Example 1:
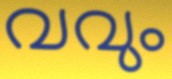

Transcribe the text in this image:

വവും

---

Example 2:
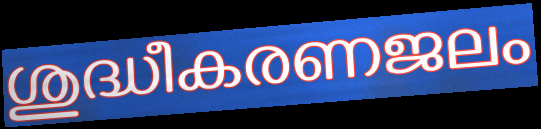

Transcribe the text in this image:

ശുദ്ധീകരണജലം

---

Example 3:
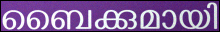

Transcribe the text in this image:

ബൈക്കുമായി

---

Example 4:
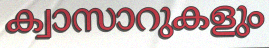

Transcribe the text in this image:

ക്വാസാറുകളും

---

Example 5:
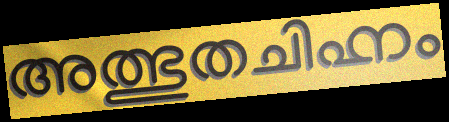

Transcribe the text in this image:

അത്ഭുതചിഹ്നം